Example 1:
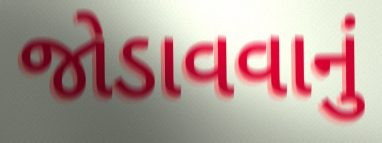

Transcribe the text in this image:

જોડાવવાનું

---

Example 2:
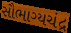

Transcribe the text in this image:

સૌભાગ્યચંદ્ર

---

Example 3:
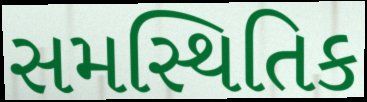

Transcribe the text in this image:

સમસ્થિતિક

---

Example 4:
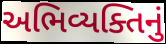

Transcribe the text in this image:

અભિવ્યક્તિનું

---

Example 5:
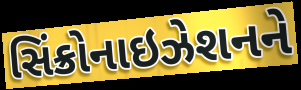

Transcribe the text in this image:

સિંક્રોનાઇઝેશનને